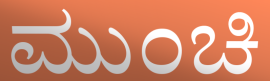
ಮುಂಚಿ